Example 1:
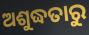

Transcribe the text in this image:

ଅଶୁଦ୍ଧତାରୁ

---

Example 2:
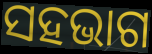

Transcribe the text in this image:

ସହଭାଗ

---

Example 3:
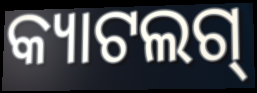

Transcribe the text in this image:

କ୍ୟାଟଲଗ୍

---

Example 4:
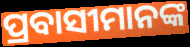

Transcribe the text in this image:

ପ୍ରବାସୀମାନଙ୍କ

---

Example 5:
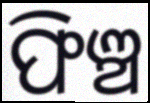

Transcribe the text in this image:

ଫିଞ୍ଚ